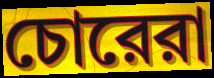
চোরেরা